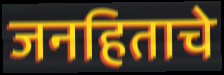
जनहिताचे